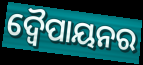
ଦ୍ୱୈପାୟନର